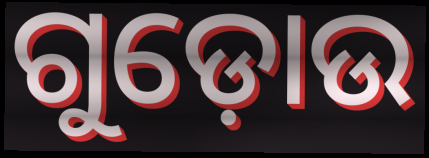
ଗୁଡ଼ୋଉ